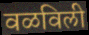
वळविली